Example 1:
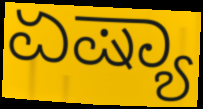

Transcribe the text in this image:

ಏಷ್ಯಾ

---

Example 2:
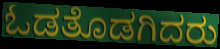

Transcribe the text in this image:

ಓಡತೊಡಗಿದರು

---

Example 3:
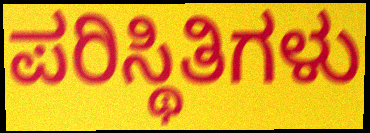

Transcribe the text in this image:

ಪರಿಸ್ಥಿತಿಗಳು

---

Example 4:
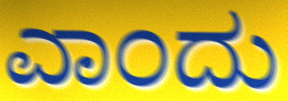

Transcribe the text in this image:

ಎಾಂದು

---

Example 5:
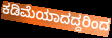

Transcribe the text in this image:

ಕಡಿಮೆಯಾದದ್ದರಿಂದ